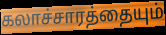
கலாச்சாரத்தையும்